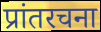
प्रांतरचना